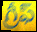
గ్రీఫ్